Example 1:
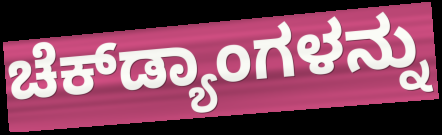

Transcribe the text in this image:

ಚೆಕ್‌ಡ್ಯಾಂಗಳನ್ನು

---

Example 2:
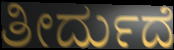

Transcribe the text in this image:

ತೀರ್ದುದೆ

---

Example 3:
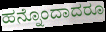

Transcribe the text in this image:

ಹನ್ನೊಂದಾದರೂ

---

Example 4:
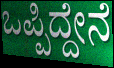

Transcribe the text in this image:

ಒಪ್ಪಿದ್ದೇನೆ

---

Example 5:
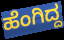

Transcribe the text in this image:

ಹೆಂಗಿದ್ದ